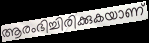
ആരംഭിച്ചിരിക്കുകയാണ്